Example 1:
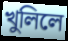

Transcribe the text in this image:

খুলিলে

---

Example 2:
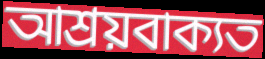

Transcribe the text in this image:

আশ্ৰয়বাক্যত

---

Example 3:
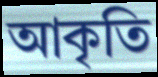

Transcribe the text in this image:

আকৃতি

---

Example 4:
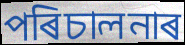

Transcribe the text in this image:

পৰিচালনাৰ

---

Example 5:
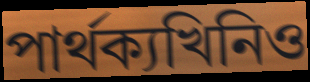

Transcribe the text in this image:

পাৰ্থক্যখিনিও